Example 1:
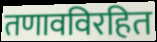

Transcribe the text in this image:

तणावविरहित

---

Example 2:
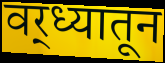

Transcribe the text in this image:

वर्ध्यातून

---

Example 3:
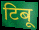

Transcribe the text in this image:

टिबू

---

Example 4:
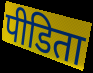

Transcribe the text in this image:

पीडिता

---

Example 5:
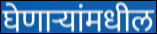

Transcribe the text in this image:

घेणाऱ्यांमधील